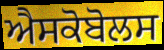
ਐਸਕੋਬੋਲਸ